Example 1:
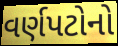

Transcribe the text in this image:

વર્ણપટોનો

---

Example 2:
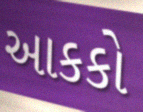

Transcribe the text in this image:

આકકો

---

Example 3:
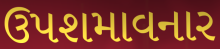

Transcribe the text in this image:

ઉપશમાવનાર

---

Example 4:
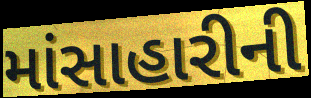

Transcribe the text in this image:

માંસાહારીની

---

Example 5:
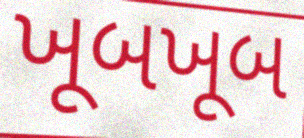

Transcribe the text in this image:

ખૂબખૂબ